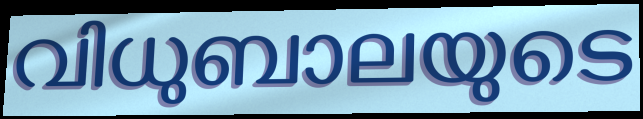
വിധുബാലയുടെ